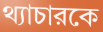
থ্যাচারকে